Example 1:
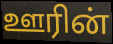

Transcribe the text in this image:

ஊரின்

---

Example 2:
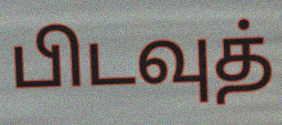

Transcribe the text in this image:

பிடவுத்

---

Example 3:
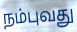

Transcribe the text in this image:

நம்புவது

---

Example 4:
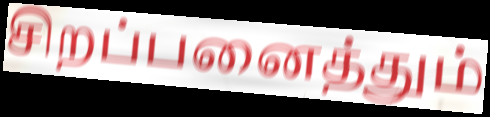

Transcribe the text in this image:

சிறப்பனைத்தும்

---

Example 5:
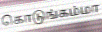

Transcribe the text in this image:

கொடுங்கம்மா